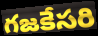
గజకేసరి